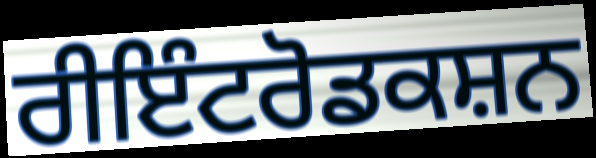
ਰੀਇੰਟਰੋਡਕਸ਼ਨ